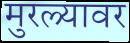
मुरल्यावर